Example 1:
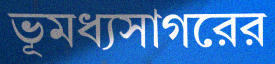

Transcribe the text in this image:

ভূমধ্যসাগরের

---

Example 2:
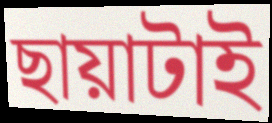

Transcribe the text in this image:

ছায়াটাই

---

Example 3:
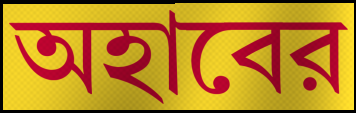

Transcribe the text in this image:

অহাবের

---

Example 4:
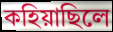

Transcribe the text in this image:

কহিয়াছিলে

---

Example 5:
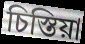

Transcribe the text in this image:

চিস্তিয়া